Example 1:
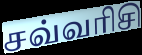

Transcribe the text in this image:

சவ்வரிசி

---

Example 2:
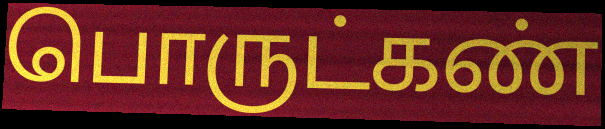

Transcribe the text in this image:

பொருட்கண்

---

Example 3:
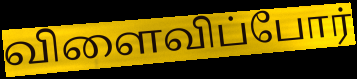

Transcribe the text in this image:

விளைவிப்போர்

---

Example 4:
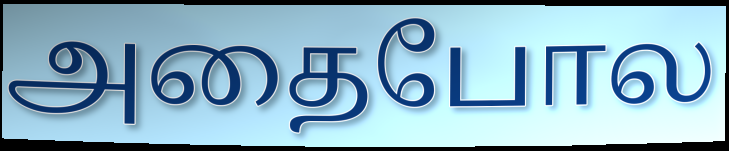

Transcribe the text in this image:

அதைபோல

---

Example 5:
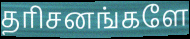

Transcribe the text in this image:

தரிசனங்களே